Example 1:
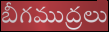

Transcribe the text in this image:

బీగముద్రలు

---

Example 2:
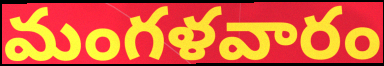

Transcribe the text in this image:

మంగళవారం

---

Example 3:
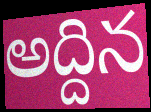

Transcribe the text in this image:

అద్దిన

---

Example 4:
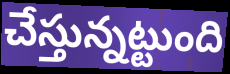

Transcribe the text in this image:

చేస్తున్నట్టుంది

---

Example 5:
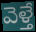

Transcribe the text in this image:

వెళ్తే